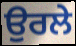
ਉਰਲੇ